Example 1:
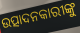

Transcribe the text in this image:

ଉତ୍ପାଦନକାରୀଙ୍କୁ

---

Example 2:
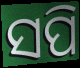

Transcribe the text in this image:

ସପି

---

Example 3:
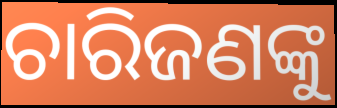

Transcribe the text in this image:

ଚାରିଜଣଙ୍କୁ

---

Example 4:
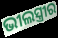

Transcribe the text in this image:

ଭୀଲସ୍ତ୍ରୀର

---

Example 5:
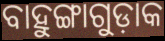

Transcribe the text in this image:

ବାହୁଙ୍ଗାଗୁଡ଼ାକ